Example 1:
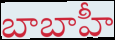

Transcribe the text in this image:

బాబాహీ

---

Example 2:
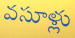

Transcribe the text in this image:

వసూళ్లు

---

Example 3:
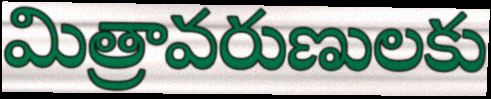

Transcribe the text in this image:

మిత్రావరుణులకు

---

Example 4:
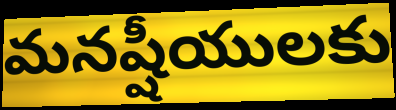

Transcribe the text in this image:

మనష్షీయులకు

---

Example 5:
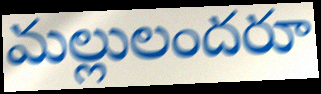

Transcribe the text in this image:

మల్లులందరూ